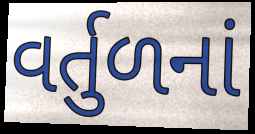
વર્તુળનાં